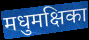
मधुमक्षिका